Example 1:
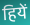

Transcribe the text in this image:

हियें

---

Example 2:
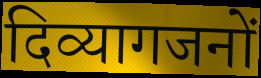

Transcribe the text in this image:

दिव्यागजनों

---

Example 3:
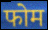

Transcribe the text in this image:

फोम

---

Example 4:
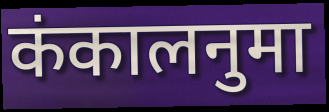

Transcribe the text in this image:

कंकालनुमा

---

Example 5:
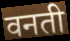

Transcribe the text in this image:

वनती